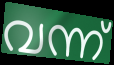
വന്ന്